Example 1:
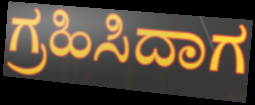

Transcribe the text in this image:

ಗ್ರಹಿಸಿದಾಗ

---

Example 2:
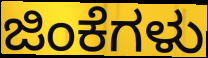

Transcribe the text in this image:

ಜಿಂಕೆಗಳು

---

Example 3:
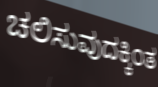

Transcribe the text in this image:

ಚಲಿಸುವುದಕ್ಕಿಂತ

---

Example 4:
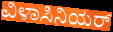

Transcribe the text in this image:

ವಿಳಾಸಿನಿಯರ್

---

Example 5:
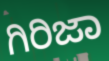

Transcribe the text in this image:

ಗಿರಿಜಾ